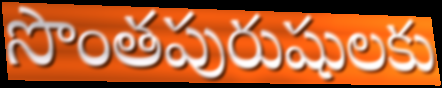
సొంతపురుషులకు